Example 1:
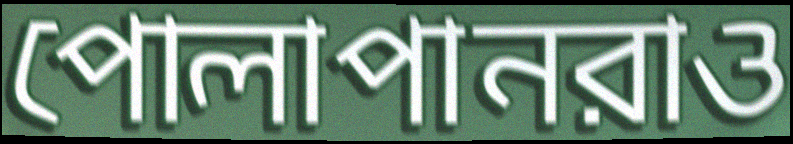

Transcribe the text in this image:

পোলাপানরাও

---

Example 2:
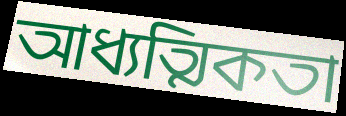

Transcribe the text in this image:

আধ্যত্মিকতা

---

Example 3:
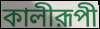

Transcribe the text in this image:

কালীরূপী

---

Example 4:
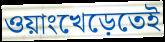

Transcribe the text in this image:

ওয়াংখেড়েতেই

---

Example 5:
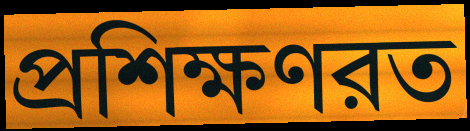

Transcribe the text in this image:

প্রশিক্ষণরত